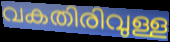
വകതിരിവുള്ള